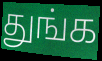
துங்க